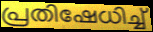
പ്രതിഷേധിച്ച്